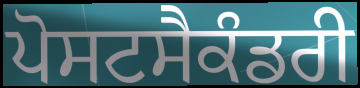
ਪੋਸਟਸੈਕੰਡਰੀ